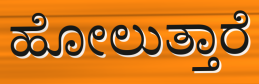
ಹೋಲುತ್ತಾರೆ